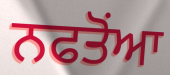
ਨਫਤੋਂਆ